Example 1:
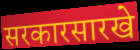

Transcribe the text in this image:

सरकारसारखे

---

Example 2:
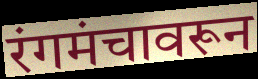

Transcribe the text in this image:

रंगमंचावरून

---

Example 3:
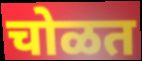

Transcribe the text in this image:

चोळत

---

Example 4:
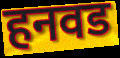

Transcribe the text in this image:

हनवड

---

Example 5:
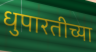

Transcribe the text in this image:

धुपारतीच्या